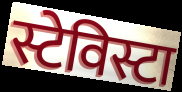
स्टेविस्टा